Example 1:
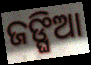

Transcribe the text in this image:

ଜଙ୍ଘିଆ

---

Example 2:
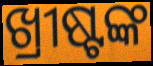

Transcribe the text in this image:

ଖ୍ରୀଷ୍ଟଙ୍କ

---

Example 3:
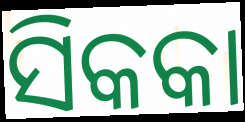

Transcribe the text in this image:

ସିକକା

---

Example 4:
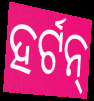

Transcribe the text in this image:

ହର୍ଟନ୍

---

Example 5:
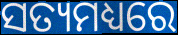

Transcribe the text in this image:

ସତ୍ୟମଧ୍ୟରେ